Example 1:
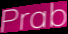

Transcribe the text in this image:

Prab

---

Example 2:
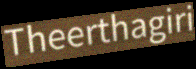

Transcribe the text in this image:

Theerthagiri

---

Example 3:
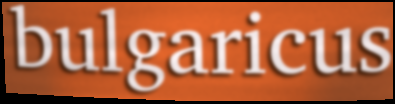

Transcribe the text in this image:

bulgaricus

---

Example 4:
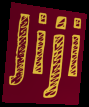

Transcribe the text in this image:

Jiji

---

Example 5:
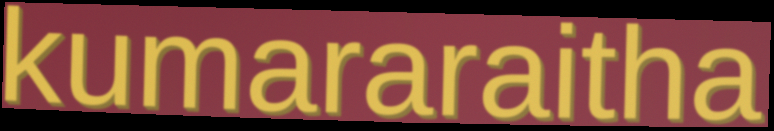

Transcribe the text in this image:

kumararaitha